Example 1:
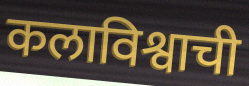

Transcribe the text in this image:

कलाविश्वाची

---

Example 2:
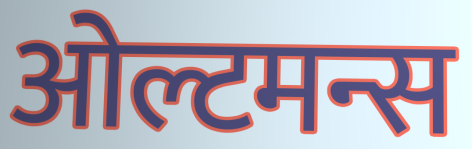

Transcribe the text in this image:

ओल्टमन्स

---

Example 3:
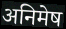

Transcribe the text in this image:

अनिमेष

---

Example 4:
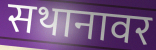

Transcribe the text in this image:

सथानावर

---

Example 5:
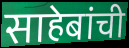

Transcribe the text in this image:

साहेबांची